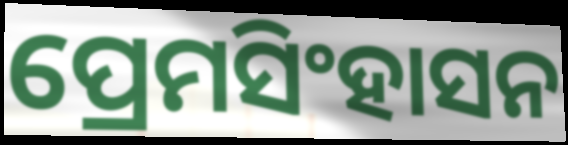
ପ୍ରେମସିଂହାସନ